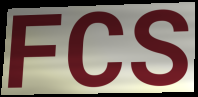
FCS